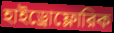
হাইড্রোফ্লোরিক